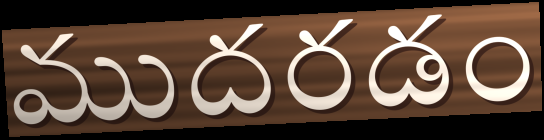
ముదరడం